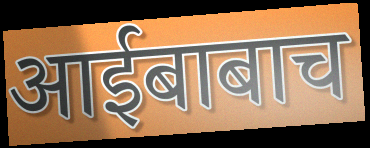
आईबाबाच